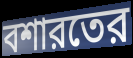
বশারতের